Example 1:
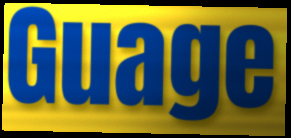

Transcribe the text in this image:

Guage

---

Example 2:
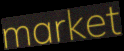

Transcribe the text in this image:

market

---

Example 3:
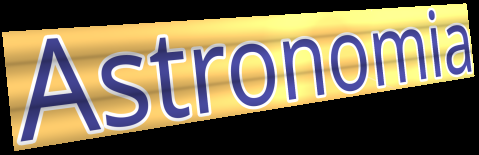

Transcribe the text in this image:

Astronomia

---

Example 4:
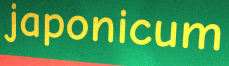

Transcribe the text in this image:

japonicum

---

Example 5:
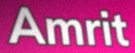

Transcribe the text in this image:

Amrit